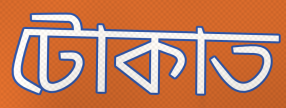
টোকাত